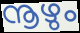
നൂഴും